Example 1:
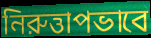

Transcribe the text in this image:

নিরুত্তাপভাবে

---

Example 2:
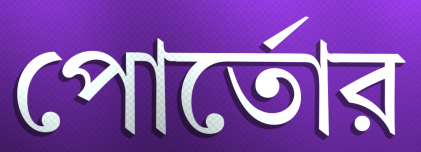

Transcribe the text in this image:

পোর্তোর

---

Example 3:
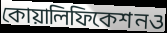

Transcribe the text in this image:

কোয়ালিফিকেশনও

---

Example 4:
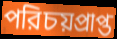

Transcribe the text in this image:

পরিচয়প্রাপ্ত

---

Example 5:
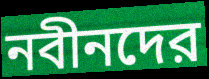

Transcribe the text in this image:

নবীনদের